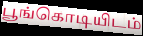
பூங்கொடியிடம்